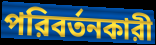
পরিবর্তনকারী